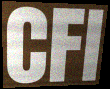
CFI